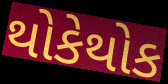
થોકેથોક